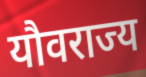
यौवराज्य